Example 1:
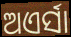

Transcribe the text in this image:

ଅଏର୍ସା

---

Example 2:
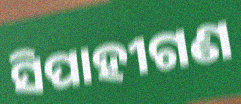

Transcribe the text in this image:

ସିପାହୀଗଣ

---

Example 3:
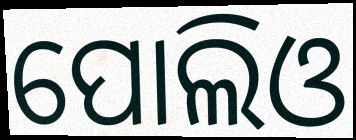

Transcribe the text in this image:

ପୋଲିଓ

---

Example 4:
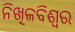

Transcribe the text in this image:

ନିଖିଳବିଶ୍ୱର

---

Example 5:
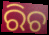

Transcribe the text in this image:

ରିଚ